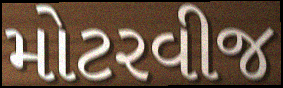
મોટરવીજ